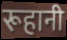
रूहानी